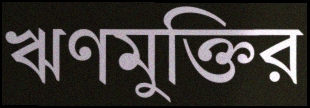
ঋণমুক্তির